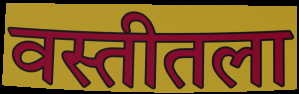
वस्तीतला